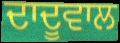
ਦਾਦੂਵਾਲ